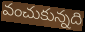
వంచుకున్నది